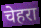
चेहरा